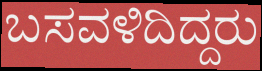
ಬಸವಳಿದಿದ್ದರು